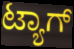
ಟ್ಯಾಗ್